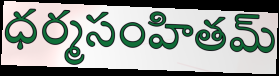
ధర్మసంహితమ్